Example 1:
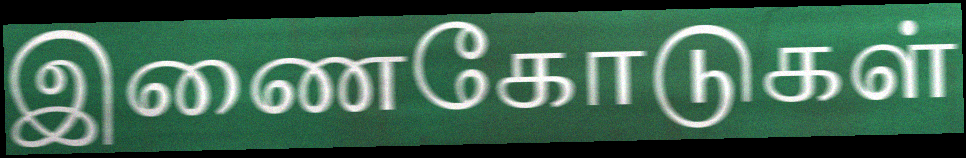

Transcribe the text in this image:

இணைகோடுகள்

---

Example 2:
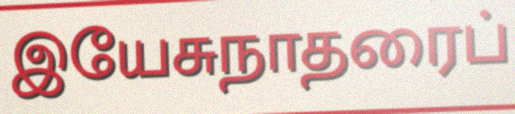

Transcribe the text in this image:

இயேசுநாதரைப்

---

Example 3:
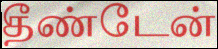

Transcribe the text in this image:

தீண்டேன்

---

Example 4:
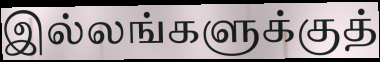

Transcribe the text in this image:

இல்லங்களுக்குத்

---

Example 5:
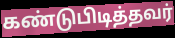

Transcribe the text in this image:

கண்டுபிடித்தவர்